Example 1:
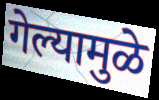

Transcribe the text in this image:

गेल्यामुळे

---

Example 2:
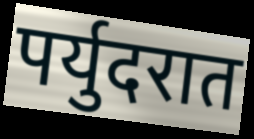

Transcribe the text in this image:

पर्युदरात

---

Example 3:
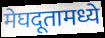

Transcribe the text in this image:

मेघदूतामध्ये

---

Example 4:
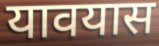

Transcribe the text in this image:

यावयास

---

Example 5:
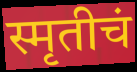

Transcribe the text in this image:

स्मृतीचं